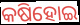
କଷିହୋଇ